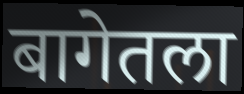
बागेतला